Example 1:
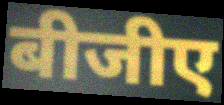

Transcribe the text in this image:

बीजीए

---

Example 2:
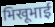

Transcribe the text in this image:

भिखूभाई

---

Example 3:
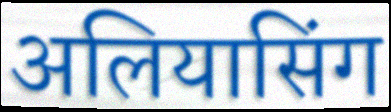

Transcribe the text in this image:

अलियासिंग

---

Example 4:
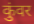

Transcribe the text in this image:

कुंवर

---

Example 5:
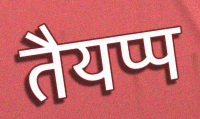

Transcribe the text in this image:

तैयप्प